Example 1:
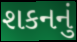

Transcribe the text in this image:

શકનનું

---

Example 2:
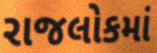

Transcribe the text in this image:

રાજલોકમાં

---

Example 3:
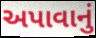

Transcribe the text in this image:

અપાવાનું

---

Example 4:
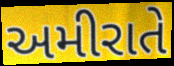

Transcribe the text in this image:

અમીરાતે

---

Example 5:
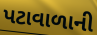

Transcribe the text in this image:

પટાવાળાની